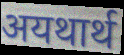
अयथार्थ